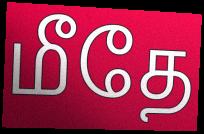
மீதே